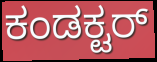
ಕಂಡಕ್ಟರ್